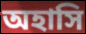
অহাসি